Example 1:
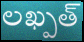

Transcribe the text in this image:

లఖ్పత్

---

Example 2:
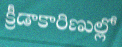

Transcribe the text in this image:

క్రీడాకారిణుల్లో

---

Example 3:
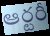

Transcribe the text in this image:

ఆర్టరీ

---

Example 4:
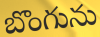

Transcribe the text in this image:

బొంగును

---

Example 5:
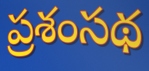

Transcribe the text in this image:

ప్రశంసథ